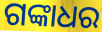
ଗଙ୍କାଧର